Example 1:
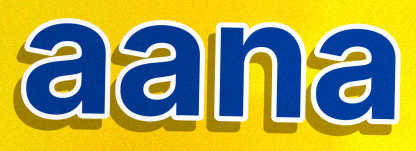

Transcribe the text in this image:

aana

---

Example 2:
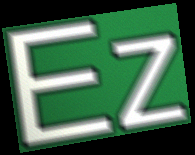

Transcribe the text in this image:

Ez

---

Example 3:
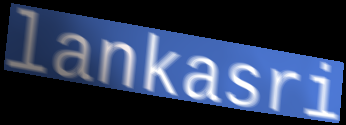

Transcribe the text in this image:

lankasri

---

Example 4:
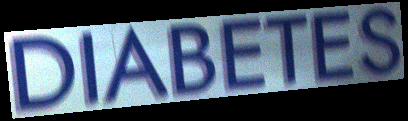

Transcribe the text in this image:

DIABETES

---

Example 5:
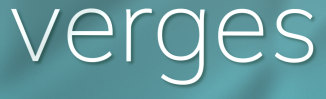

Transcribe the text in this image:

verges